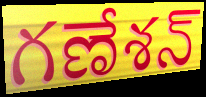
గణేశన్